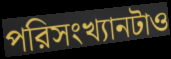
পরিসংখ্যানটাও